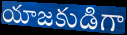
యాజకుడిగా